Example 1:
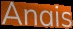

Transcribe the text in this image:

Anais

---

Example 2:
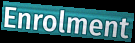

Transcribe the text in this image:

Enrolment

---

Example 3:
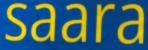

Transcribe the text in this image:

saara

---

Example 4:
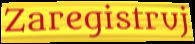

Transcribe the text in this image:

Zaregistruj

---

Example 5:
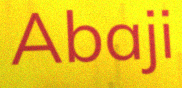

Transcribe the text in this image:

Abaji